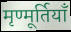
मृण्मूर्तियाँ